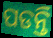
ପଡନ୍ତି